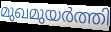
മുഖമുയർത്തി